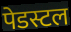
पेडस्टल